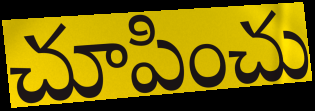
చూపించు